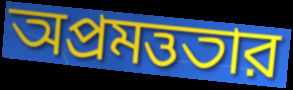
অপ্রমত্ততার